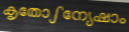
കൃതോഽന്യേഷാം